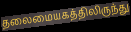
தலைமையகத்திலிருந்து